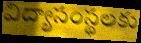
విద్యాసంస్థలకు